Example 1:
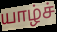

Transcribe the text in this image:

யாழ்ச்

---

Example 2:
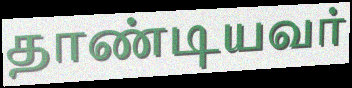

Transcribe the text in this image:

தாண்டியவர்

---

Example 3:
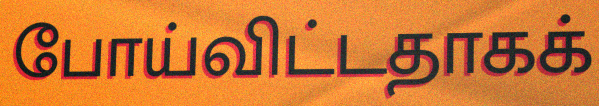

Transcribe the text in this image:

போய்விட்டதாகக்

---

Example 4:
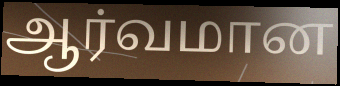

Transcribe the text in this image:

ஆர்வமான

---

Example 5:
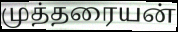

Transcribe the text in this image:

முத்தரையன்